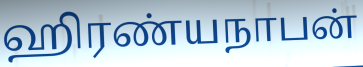
ஹிரண்யநாபன்